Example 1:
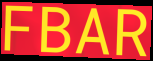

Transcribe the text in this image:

FBAR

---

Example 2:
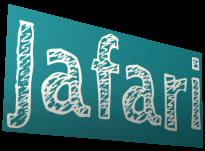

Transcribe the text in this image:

Jafari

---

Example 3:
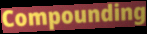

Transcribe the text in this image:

Compounding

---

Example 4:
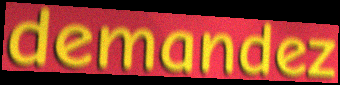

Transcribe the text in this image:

demandez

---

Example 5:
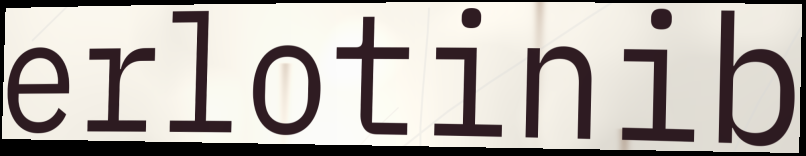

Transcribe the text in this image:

erlotinib